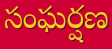
సంఘర్షణ